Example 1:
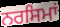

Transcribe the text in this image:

ਨਰਸਿਮਾਂ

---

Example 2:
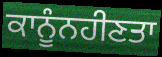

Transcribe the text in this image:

ਕਾਨੂੰਨਹੀਣਤਾ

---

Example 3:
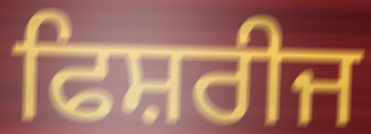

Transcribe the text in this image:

ਫਿਸ਼ਰੀਜ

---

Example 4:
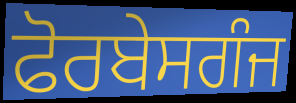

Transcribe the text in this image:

ਫੋਰਬੇਸਗੰਜ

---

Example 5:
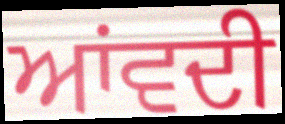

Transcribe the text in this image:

ਆਂਵਦੀ